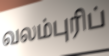
வலம்புரிப்